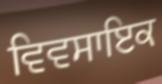
ਵਿਵਸਾਇਕ